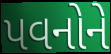
પવનોને